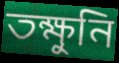
তক্ষুনি